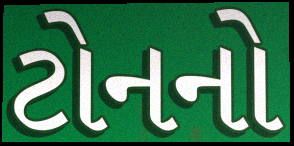
ટોનનો